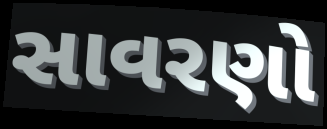
સાવરણો